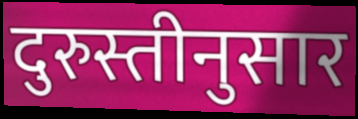
दुरुस्तीनुसार